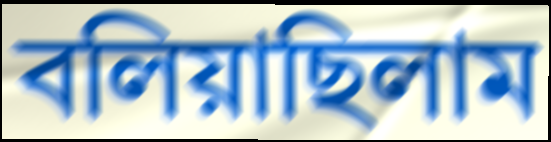
বলিয়াছিলাম